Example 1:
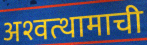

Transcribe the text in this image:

अश्वत्थामाची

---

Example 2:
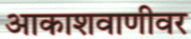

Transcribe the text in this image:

आकाशवाणीवर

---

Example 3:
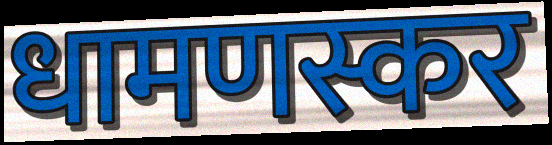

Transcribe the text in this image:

धामणस्कर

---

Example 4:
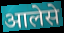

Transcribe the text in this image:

आलेसे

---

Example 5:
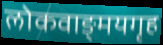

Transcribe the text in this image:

लोकवाङ्मयगृह